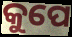
କୁପେ